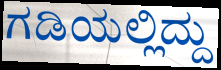
ಗಡಿಯಲ್ಲಿದ್ದು